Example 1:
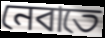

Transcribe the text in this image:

নেবাতে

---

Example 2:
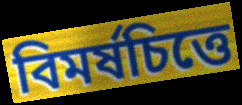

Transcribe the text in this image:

বিমর্ষচিত্তে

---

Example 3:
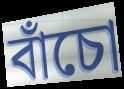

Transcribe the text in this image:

বাঁচো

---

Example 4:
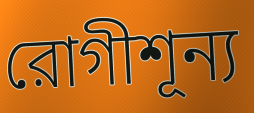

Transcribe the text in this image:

রোগীশূন্য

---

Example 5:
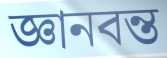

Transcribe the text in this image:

জ্ঞানবন্ত